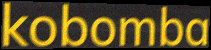
kobomba